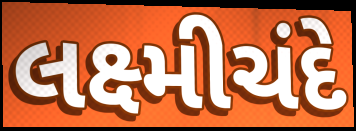
લક્ષ્મીચંદે